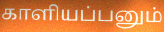
காளியப்பனும்